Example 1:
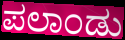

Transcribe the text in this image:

ಪಲಾಂಡು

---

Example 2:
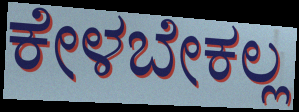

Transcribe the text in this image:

ಕೇಳಬೇಕಲ್ಲ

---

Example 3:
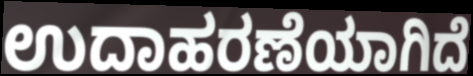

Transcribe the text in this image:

ಉದಾಹರಣೆಯಾಗಿದೆ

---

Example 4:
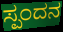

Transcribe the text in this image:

ಸ್ಪಂದನ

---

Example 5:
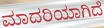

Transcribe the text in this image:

ಮಾದರಿಯಾಗಿದೆ